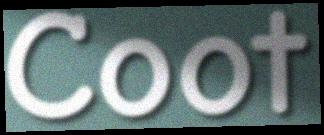
Coot